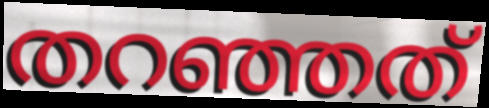
തറഞ്ഞത്